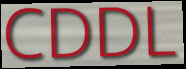
CDDL